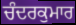
ਚੰਦਰਕੁਮਾਰ